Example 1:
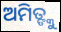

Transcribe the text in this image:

ଅମିତ୍ଙ୍କୁ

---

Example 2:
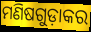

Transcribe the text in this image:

ମଣିଷଗୁଡ଼ାକର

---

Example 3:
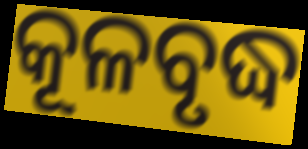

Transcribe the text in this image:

କୂଳବୃଦ୍ଧ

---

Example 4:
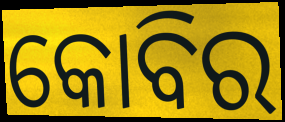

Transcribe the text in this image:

କୋବିର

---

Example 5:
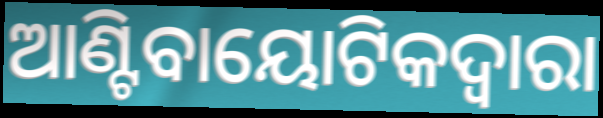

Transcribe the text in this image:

ଆଣ୍ଟିବାୟୋଟିକଦ୍ୱାରା